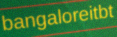
bangaloreitbt